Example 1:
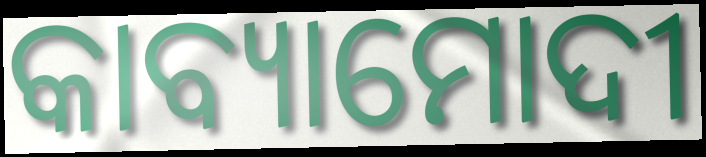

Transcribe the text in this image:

କାବ୍ୟାମୋଦୀ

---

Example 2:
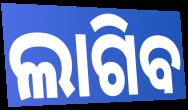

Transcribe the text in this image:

ଲାଗିବ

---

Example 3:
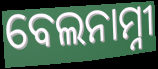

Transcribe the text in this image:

ବେଲନାମ୍ନୀ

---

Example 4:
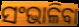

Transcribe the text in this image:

ସଂଭାଳିବା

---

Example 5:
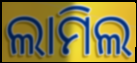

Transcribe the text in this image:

ଲାମିଲ